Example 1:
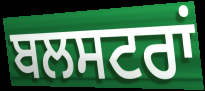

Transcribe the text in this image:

ਬਲਸਟਰਾਂ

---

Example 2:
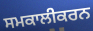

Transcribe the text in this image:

ਸਮਕਾਲੀਕਰਨ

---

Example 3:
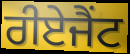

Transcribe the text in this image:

ਰੀਏਜੈਂਟ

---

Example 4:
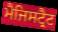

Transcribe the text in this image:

ਮੈਜਿਸਟ੍ਰੈਟ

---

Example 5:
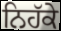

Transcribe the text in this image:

ਨਿਹੱਕੇ